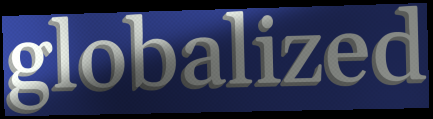
globalized